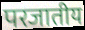
परजातीय